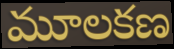
మూలకణ